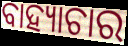
ବାହ୍ୟାଚାର